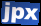
jpx